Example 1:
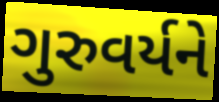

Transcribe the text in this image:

ગુરુવર્યને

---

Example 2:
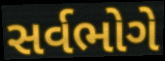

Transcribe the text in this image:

સર્વભોગે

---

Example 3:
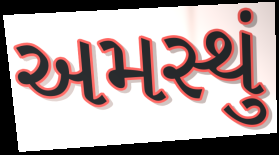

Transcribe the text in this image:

અમસ્થું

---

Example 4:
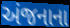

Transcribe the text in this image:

અંજનાના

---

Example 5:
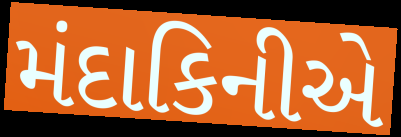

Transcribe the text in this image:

મંદાકિનીએ